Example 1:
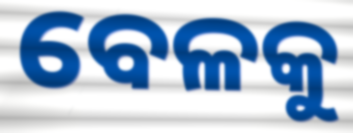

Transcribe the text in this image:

ବେଳକୁ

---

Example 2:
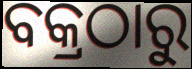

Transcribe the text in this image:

ବକ୍ରଠାରୁ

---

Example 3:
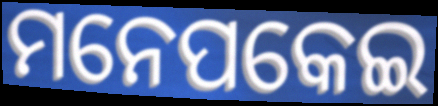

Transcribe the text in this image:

ମନେପକେଇ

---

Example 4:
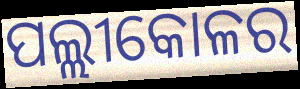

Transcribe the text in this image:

ପଲ୍ଲୀକୋଳର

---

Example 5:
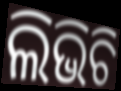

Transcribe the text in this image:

ଲିଭିଚି